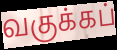
வகுக்கப்